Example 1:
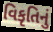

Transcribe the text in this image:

વિકૃતિનું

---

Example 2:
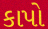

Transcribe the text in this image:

કાપો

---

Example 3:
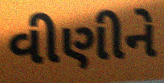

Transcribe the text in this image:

વીણીને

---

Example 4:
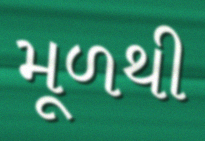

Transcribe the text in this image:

મૂળથી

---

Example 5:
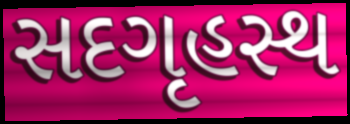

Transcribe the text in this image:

સદગૃહસ્થ